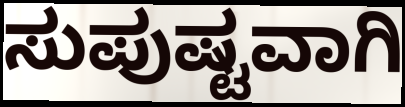
ಸುಪುಷ್ಟವಾಗಿ